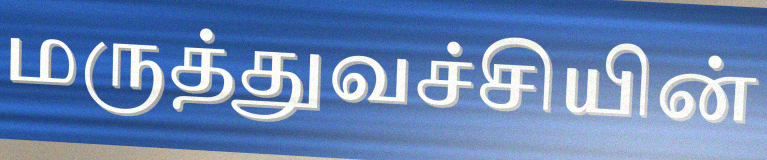
மருத்துவச்சியின்